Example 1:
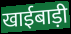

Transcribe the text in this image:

खाईबाड़ी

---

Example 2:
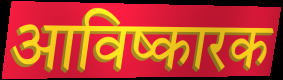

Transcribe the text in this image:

आविष्कारक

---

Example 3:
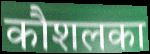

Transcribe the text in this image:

कौशलका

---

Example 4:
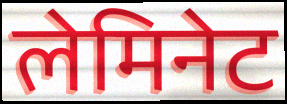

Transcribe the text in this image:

लेमिनेट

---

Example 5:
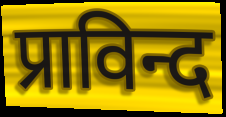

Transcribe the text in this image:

प्राविन्द